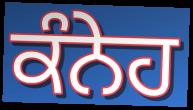
ਕੰਨੇਹ